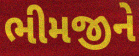
ભીમજીને